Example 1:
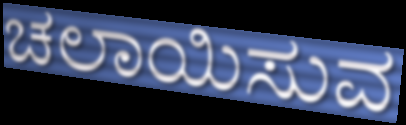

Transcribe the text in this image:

ಚಲಾಯಿಸುವ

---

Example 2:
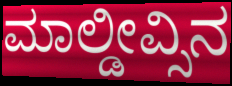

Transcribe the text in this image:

ಮಾಲ್ಡೀವ್ಸಿನ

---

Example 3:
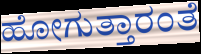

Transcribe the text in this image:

ಹೋಗುತ್ತಾರಂತೆ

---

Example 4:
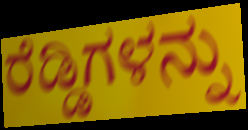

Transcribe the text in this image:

ರೆಡ್ಡಿಗಳನ್ನು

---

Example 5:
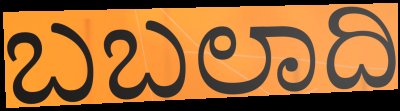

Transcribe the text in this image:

ಬಬಲಾದಿ